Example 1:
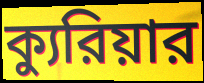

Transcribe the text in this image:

ক্যুরিয়ার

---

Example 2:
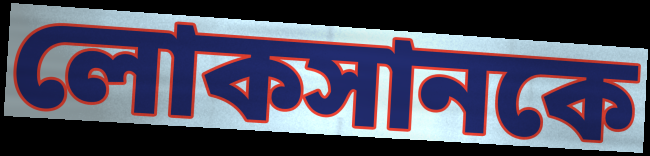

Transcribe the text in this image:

লোকসানকে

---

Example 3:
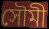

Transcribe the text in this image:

সৌমী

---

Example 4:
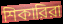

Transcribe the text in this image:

শিকারিরা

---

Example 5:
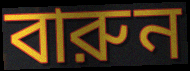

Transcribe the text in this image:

বারুন